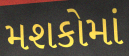
મશકોમાં